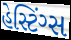
હેસ્ટિંગ્સ